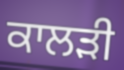
ਕਾਲੜੀ